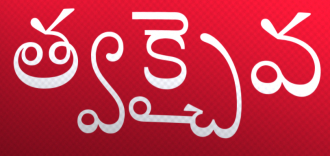
త్వక్చైవ